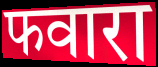
फवारा